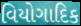
વિયોગાદિક